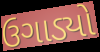
ઉગાડ્યો